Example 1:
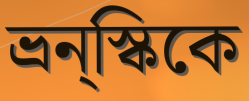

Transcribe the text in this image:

ভ্রন্‌স্কিকে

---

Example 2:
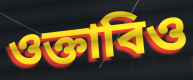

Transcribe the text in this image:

ওক্তাবিও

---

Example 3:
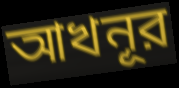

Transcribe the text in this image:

আখনূর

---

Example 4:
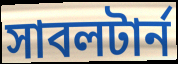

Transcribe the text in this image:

সাবলটার্ন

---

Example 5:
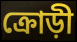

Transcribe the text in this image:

ক্রোড়ী